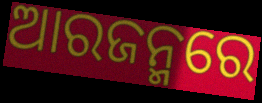
ଆରଜନ୍ମରେ